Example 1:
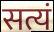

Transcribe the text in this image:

सत्यं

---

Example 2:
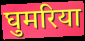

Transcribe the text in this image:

घुमरिया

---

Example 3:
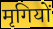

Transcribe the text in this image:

मृगियों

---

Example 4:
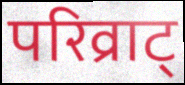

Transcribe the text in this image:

परिव्राट्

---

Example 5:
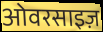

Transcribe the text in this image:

ओवरसाइज़